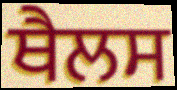
ਥੈਲਸ